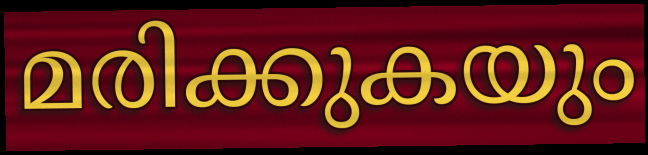
മരിക്കുകയും